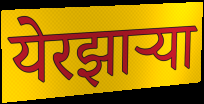
येरझार्‍या